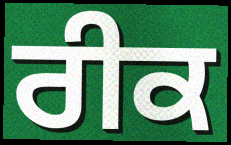
ਰੀਕ